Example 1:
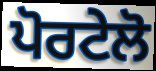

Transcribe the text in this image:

ਪੋਰਟੇਲੋ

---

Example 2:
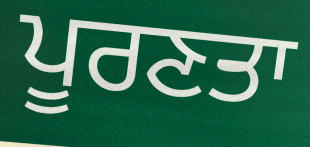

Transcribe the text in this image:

ਪੂਰਣਤਾ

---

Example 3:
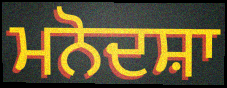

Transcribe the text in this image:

ਮਨੋਦਸ਼ਾ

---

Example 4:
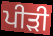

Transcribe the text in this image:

ਪੀੜੀ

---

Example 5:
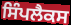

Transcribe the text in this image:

ਸਿੰਪਲੈਕਸ